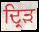
ਦ੍ਰਿਡ਼